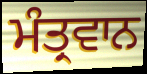
ਮੰਤ੍ਰਵਾਨ